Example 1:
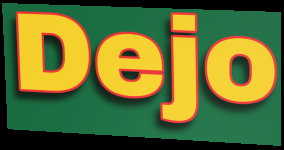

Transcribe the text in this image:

Dejo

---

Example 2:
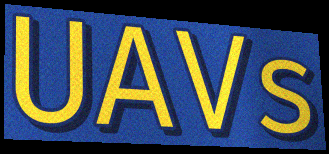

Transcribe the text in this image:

UAVs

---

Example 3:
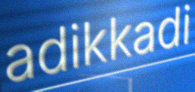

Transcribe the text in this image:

adikkadi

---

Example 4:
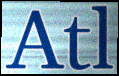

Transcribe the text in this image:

Atl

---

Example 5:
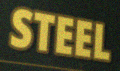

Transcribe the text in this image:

STEEL